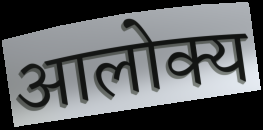
आलोक्य